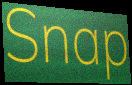
Snap